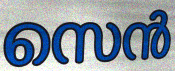
സെൻ